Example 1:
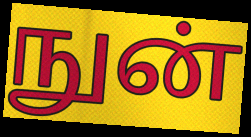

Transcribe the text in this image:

நுன்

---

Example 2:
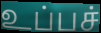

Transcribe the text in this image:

உப்பச்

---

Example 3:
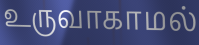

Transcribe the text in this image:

உருவாகாமல்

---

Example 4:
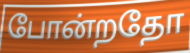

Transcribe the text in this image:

போன்றதோ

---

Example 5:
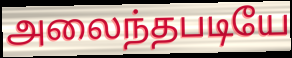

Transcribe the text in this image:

அலைந்தபடியே